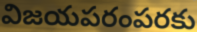
విజయపరంపరకు